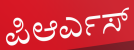
ಪಿಆರ್ಎಸ್